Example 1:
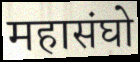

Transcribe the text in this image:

महासंघो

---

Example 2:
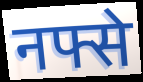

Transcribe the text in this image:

नफ्से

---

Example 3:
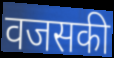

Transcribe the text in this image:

वजसकी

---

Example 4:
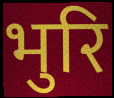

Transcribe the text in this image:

भुरि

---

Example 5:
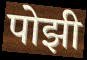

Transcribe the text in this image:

पोझी